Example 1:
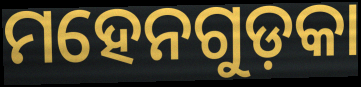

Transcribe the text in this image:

ମହେନଗୁଡ଼କା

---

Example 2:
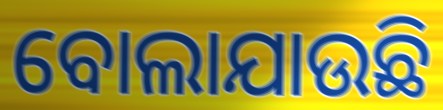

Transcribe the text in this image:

ବୋଲାଯାଉଛି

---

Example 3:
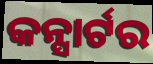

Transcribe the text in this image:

କନ୍ସାର୍ଟର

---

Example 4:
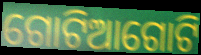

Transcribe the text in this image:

ଗୋଟିଆଗୋଟି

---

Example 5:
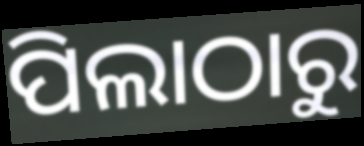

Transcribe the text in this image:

ପିଲାଠାରୁ